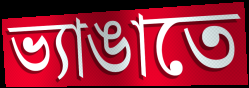
ভ্যাঙাতে